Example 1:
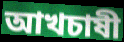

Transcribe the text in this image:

আখচাষী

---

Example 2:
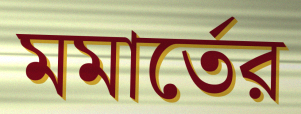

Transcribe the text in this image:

মমার্তের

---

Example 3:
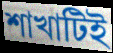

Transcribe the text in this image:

শাখাটিই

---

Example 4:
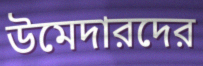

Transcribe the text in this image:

উমেদারদের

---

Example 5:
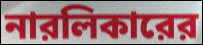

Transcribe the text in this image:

নারলিকারের